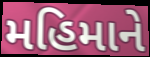
મહિમાને